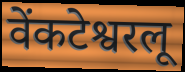
वेंकटेश्वरलू